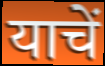
याचें